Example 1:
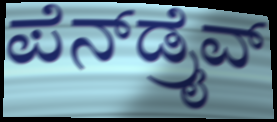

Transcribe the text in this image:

ಪೆನ್‌ಡ್ರೈವ್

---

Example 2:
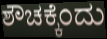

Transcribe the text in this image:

ಶೌಚಕ್ಕೆಂದು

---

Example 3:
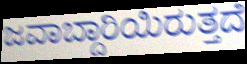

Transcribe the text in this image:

ಜವಾಬ್ದಾರಿಯಿರುತ್ತದೆ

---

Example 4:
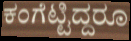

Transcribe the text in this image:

ಕಂಗೆಟ್ಟಿದ್ದರೂ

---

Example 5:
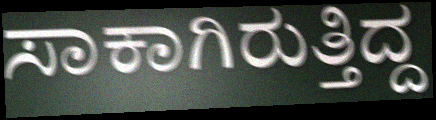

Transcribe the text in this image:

ಸಾಕಾಗಿರುತ್ತಿದ್ದ